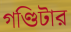
গণ্ডিটার